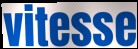
vitesse